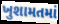
ખુશામતમાં